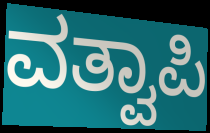
ವತ್ವಾಪಿ